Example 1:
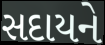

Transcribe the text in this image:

સદાયને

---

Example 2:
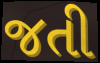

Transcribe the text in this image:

જતી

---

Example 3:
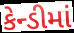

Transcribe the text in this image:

કેન્ડીમાં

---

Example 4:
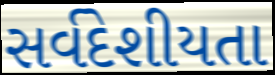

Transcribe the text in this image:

સર્વદેશીયતા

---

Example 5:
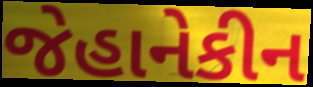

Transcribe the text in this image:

જેહાનેકીન